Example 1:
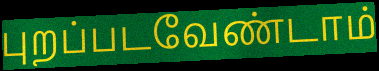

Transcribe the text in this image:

புறப்படவேண்டாம்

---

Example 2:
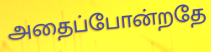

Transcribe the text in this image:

அதைப்போன்றதே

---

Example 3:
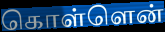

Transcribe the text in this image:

கொள்ளென்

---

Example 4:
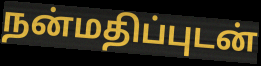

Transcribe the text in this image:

நன்மதிப்புடன்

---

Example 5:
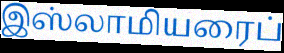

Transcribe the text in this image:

இஸ்லாமியரைப்